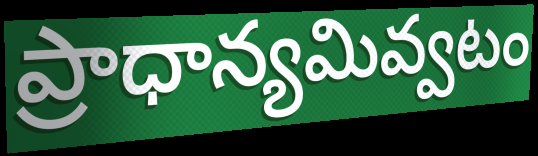
ప్రాధాన్యమివ్వటం